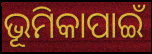
ଭୂମିକାପାଇଁ